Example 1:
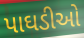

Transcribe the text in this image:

પાઘડીઓ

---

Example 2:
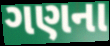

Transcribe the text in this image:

ગણના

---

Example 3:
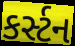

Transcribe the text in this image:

કર્સ્ટન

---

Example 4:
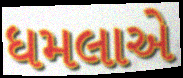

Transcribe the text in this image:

ધમલાએ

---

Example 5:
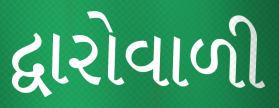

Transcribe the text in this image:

દ્વારોવાળી